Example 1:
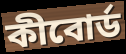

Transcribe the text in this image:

কীবোর্ড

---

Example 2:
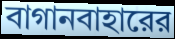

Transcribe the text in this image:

বাগানবাহারের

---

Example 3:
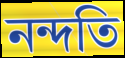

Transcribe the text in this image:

নন্দতি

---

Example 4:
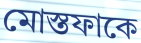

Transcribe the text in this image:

মোস্তফাকে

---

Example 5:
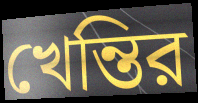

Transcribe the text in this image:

খেন্তির